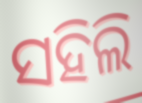
ସହିଲି